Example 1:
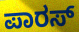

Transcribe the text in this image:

ಪಾರಸ್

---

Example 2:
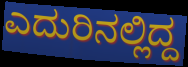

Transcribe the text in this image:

ಎದುರಿನಲ್ಲಿದ್ದ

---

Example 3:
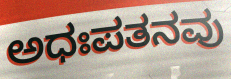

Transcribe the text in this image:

ಅಧಃಪತನವು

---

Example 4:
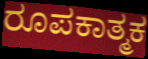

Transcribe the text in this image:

ರೂಪಕಾತ್ಮಕ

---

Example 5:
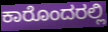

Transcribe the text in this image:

ಕಾರೊಂದರಲ್ಲಿ